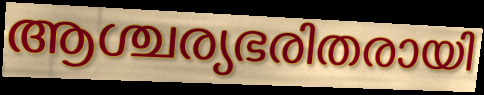
ആശ്ചര്യഭരിതരായി